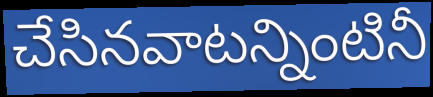
చేసినవాటన్నింటినీ